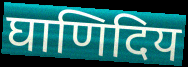
घाणिदिय